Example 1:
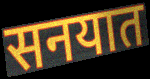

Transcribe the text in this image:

सनयात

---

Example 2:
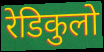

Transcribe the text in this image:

रेडिकुलो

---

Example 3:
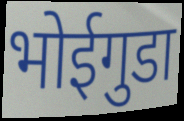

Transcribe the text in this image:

भोईगुडा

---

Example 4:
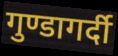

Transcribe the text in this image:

गुण्डागर्दी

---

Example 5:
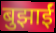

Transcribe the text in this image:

बुझाईं